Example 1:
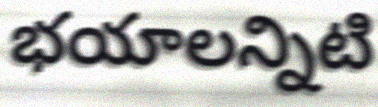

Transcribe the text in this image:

భయాలన్నిటి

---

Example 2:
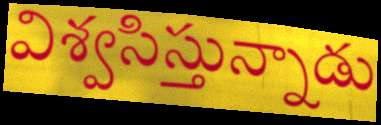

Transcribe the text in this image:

విశ్వసిస్తున్నాడు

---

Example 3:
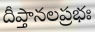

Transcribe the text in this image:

దీప్తానలప్రభః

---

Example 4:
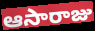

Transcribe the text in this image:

ఆసారాజు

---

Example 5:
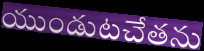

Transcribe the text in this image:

యుండుటచేతను